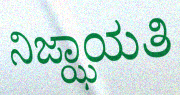
ನಿಜ್ಝಾಯತಿ